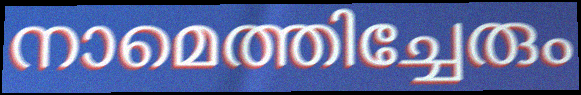
നാമെത്തിച്ചേരും